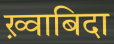
ख़्वाबिदा